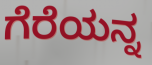
ಗೆರೆಯನ್ನ